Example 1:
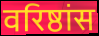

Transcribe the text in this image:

वरिष्ठांस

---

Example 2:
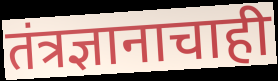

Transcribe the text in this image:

तंत्रज्ञानाचाही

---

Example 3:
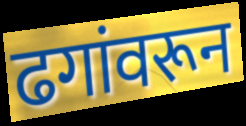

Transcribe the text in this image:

ढगांवरून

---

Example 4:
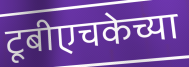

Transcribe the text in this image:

टूबीएचकेच्या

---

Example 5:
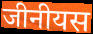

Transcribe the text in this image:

जीनीयस